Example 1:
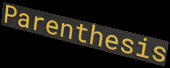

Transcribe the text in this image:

Parenthesis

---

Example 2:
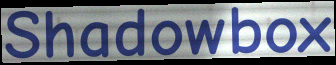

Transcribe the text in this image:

Shadowbox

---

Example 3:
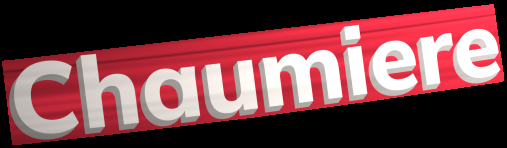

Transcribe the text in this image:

Chaumiere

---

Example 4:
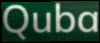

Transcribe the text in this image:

Quba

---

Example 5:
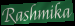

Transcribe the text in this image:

Rashmika